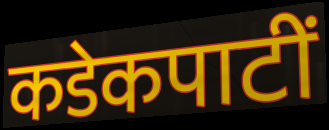
कडेकपाटीं